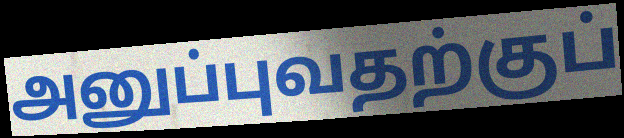
அனுப்புவதற்குப்